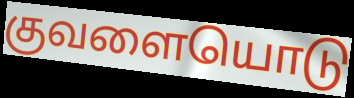
குவளையொடு